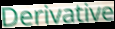
Derivative